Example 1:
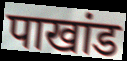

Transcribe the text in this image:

पाखांड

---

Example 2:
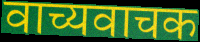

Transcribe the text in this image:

वाच्यवाचक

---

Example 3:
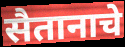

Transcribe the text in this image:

सैतानाचे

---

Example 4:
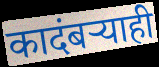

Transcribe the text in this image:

कादंबऱ्याही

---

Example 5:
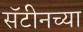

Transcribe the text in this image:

सॅटीनच्या